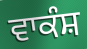
ਵਾਕੰਸ਼